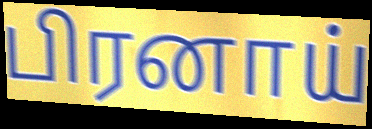
பிரனாய்